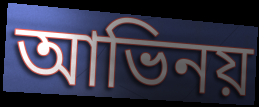
আভিনয়